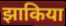
झाकिया